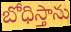
బోధిస్తాను